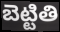
బెట్టితి